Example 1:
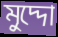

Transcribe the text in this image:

মুদ্দো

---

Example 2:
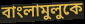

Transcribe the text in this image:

বাংলামুলুকে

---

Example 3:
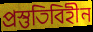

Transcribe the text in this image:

প্রস্তুতিবিহীন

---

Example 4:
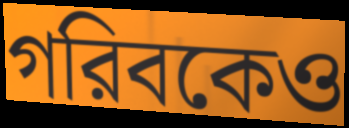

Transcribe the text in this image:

গরিবকেও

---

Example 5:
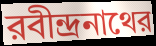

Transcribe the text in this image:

রবীন্দ্রনাথের